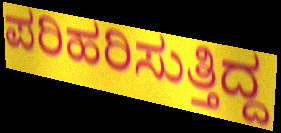
ಪರಿಹರಿಸುತ್ತಿದ್ದ